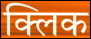
क्लिक